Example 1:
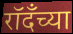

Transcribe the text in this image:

रॉदँच्या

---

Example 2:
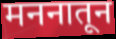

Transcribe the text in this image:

मननातून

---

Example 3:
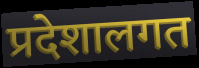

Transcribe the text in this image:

प्रदेशालगत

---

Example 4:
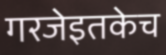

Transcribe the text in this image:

गरजेइतकेच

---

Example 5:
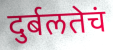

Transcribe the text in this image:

दुर्बलतेचं